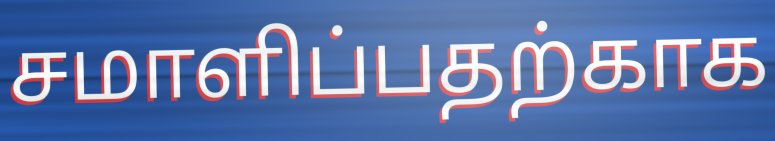
சமாளிப்பதற்காக